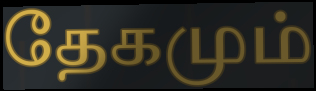
தேகமும்